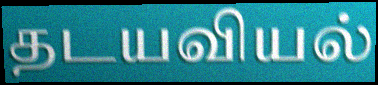
தடயவியல்